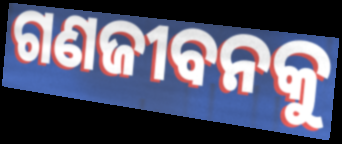
ଗଣଜୀବନକୁ